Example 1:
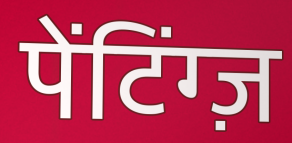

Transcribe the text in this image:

पेंटिंग्ज़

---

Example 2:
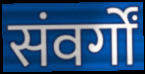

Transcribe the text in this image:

संवर्गों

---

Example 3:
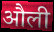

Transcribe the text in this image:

औली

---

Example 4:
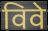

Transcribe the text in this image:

विवे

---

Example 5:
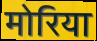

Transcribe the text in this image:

मोरिया